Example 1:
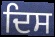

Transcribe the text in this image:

ਦਿਸ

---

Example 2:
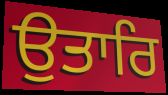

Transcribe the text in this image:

ਉਤਾਰਿ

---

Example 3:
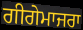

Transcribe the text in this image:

ਗੀਗੇਮਾਜਰਾ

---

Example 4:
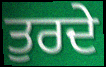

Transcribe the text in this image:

ਤੁਰਦੇ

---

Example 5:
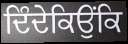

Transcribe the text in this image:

ਦਿੰਦੇਕਿਉਂਕਿ